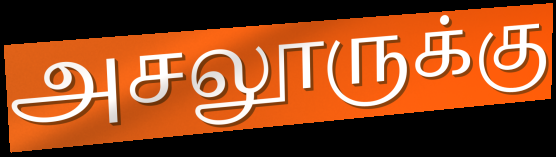
அசலூருக்கு